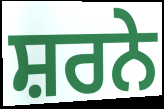
ਸ਼ਰਨੇ